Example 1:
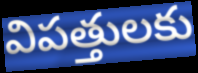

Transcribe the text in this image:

విపత్తులకు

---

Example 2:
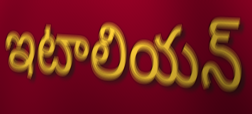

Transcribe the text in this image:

ఇటాలియన్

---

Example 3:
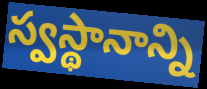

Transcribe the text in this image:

స్వస్థానాన్ని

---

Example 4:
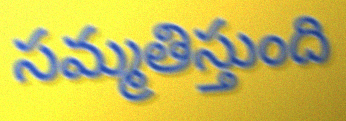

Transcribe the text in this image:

సమ్మతిస్తుంది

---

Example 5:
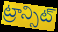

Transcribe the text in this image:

ట్రాన్సిట్